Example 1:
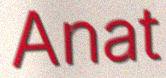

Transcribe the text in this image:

Anat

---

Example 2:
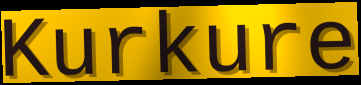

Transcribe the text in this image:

Kurkure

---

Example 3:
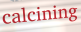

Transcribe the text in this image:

calcining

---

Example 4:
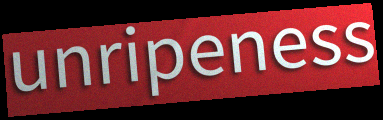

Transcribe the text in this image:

unripeness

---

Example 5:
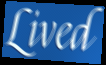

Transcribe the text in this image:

Lived